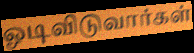
ஓடிவிடுவார்கள்